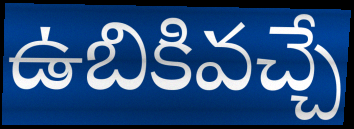
ఉబికివచ్చే